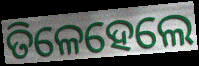
ତିଳେହେଲେ